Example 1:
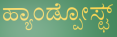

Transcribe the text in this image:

ಹ್ಯಾಂಡ್ಪೋಸ್ಟ್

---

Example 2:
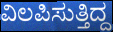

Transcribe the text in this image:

ವಿಲಪಿಸುತ್ತಿದ್ದ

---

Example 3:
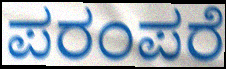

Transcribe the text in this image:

ಪರಂಪರೆ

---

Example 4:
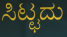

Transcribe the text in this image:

ಸಿಟ್ಟದು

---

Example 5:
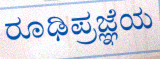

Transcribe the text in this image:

ರೂಢಿಪ್ರಜ್ಞೆಯ